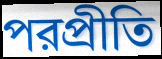
পরপ্রীতি